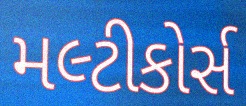
મલ્ટીકોર્સ